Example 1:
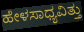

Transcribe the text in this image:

ಹೇಳಸಾಧ್ಯವಿತ್ತು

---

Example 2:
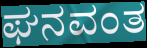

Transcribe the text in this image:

ಘನವಂತ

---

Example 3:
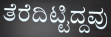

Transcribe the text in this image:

ತೆರೆದಿಟ್ಟಿದ್ದವು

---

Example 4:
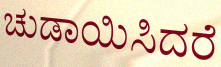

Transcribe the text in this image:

ಚುಡಾಯಿಸಿದರೆ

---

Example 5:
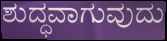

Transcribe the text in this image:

ಶುದ್ಧವಾಗುವುದು